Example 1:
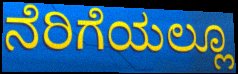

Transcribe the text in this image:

ನೆರಿಗೆಯಲ್ಲೂ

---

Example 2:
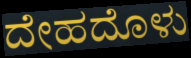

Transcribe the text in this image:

ದೇಹದೊಳು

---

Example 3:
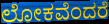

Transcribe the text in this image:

ಲೋಕವೆಂದರೆ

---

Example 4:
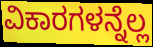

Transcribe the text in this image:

ವಿಕಾರಗಳನ್ನೆಲ್ಲ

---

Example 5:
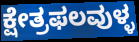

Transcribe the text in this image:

ಕ್ಷೇತ್ರಫಲವುಳ್ಳ